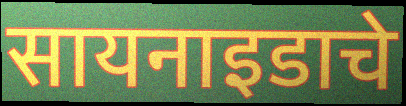
सायनाइडाचे